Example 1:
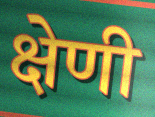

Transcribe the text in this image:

क्षेणी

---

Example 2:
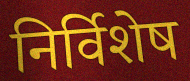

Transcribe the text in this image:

निर्विशेष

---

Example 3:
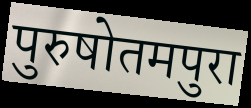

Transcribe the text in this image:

पुरुषोतमपुरा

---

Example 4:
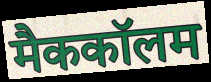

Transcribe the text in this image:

मैककॉलम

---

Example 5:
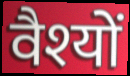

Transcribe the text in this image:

वैश्‍यों